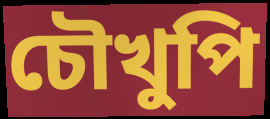
চৌখুপি